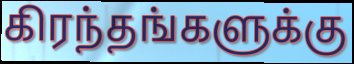
கிரந்தங்களுக்கு